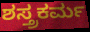
ಶಸ್ತ್ರಕರ್ಮ